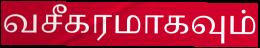
வசீகரமாகவும்